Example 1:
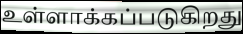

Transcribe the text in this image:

உள்ளாக்கப்படுகிறது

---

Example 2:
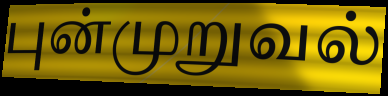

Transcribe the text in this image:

புன்முறுவல்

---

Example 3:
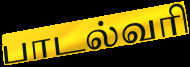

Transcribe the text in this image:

பாடல்வரி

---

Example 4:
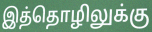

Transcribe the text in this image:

இத்தொழிலுக்கு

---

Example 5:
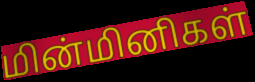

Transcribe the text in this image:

மின்மினிகள்